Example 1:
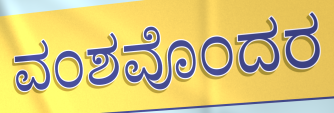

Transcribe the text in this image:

ವಂಶವೊಂದರ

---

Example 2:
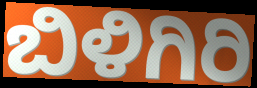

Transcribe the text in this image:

ಬಿಳಿಗಿರಿ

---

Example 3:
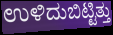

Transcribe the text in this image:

ಉಳಿದುಬಿಟ್ಟಿತ್ತು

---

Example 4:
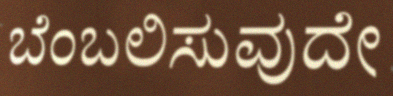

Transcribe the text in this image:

ಬೆಂಬಲಿಸುವುದೇ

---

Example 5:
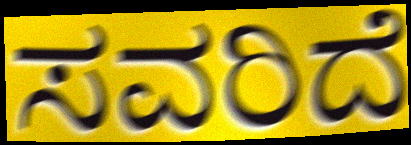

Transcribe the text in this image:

ಸವರಿದೆ